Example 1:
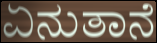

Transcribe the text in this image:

ಏನುತಾನೆ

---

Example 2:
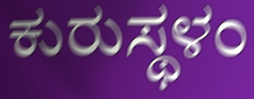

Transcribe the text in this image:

ಕುರುಸ್ಥಳಂ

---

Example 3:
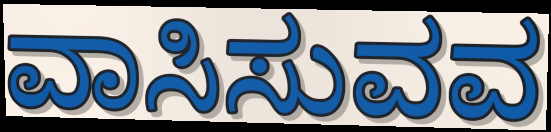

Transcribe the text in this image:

ವಾಸಿಸುವವ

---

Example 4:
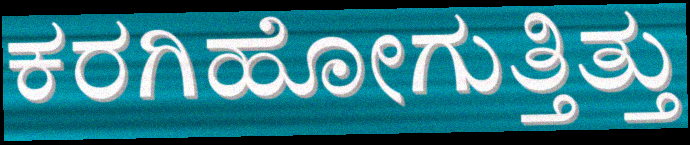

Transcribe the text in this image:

ಕರಗಿಹೋಗುತ್ತಿತ್ತು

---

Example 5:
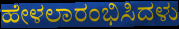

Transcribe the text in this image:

ಹೇಳಲಾರಂಭಿಸಿದಳು